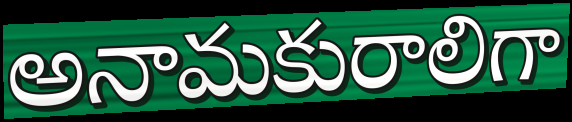
అనామకురాలిగా